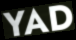
YAD